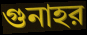
গুনাহর